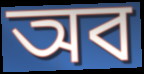
অব